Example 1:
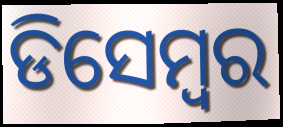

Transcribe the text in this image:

ଡିସେମ୍ୱର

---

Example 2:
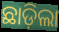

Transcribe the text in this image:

ଛାଡ଼ିଲା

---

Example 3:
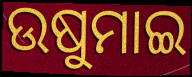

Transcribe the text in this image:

ଉଷୁମାଇ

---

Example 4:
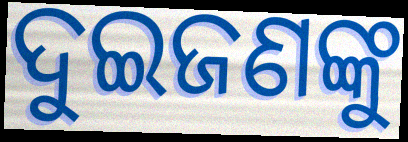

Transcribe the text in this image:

ଦୁଇଜଣଙ୍କୁ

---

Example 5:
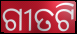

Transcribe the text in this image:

ଗୀତଟି